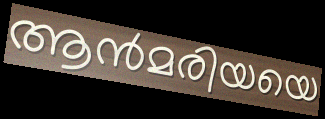
ആൻമരിയയെ